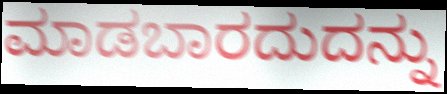
ಮಾಡಬಾರದುದನ್ನು